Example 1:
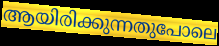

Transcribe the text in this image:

ആയിരിക്കുന്നതുപോലെ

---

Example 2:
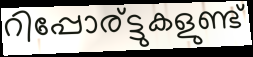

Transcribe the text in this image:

റിപ്പോര്ട്ടുകളുണ്ട്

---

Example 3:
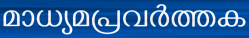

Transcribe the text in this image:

മാധ്യമപ്രവർത്തക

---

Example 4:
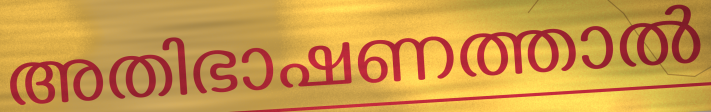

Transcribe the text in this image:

അതിഭാഷണത്താൽ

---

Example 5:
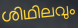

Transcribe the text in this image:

ശിഥിലവും